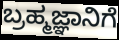
ಬ್ರಹ್ಮಜ್ಞಾನಿಗೆ